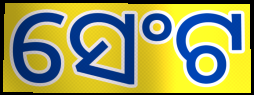
ସେଂଟ